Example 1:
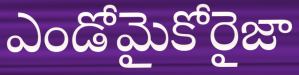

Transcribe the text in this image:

ఎండోమైకోరైజా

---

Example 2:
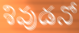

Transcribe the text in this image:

శివుడనో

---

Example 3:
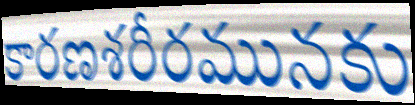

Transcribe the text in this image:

కారణశరీరమునకు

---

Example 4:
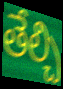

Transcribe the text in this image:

తేల్చి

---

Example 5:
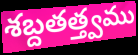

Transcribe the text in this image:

శబ్దతత్త్వము